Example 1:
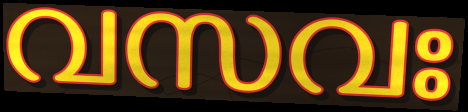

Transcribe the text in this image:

വസവഃ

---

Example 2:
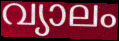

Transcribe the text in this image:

വ്യാലം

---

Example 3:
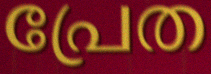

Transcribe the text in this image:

പ്രേത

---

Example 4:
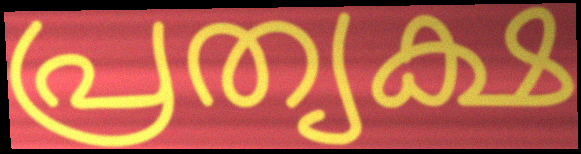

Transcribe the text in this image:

പ്രത്യക്ഷ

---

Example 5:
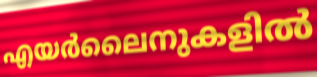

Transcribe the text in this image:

എയർലൈനുകളിൽ